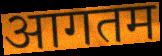
आगतम